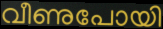
വീണുപോയി